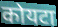
कोयटा